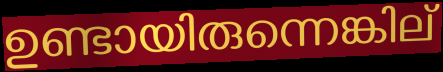
ഉണ്ടായിരുന്നെങ്കില്